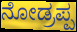
ನೋಡ್ರಪ್ಪ